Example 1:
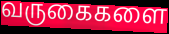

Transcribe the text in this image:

வருகைகளை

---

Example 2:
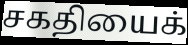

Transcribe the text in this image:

சகதியைக்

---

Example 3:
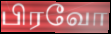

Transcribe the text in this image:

பிரவோ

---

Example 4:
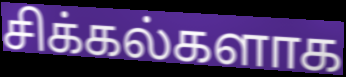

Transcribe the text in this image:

சிக்கல்களாக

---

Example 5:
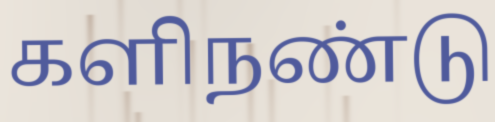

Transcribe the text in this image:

களிநண்டு